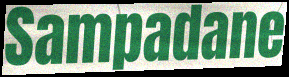
Sampadane